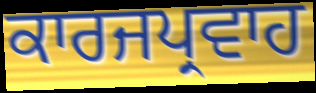
ਕਾਰਜਪ੍ਰਵਾਹ